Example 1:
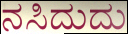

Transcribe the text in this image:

ನಸಿದುದು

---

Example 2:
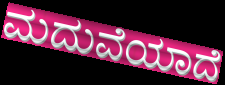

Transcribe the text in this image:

ಮದುವೆಯಾದೆ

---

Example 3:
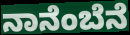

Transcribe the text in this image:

ನಾನೆಂಬೆನೆ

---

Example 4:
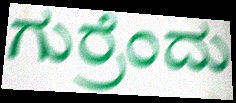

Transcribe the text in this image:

ಗುರ್ರೆಂದು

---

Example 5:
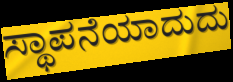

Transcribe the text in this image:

ಸ್ಥಾಪನೆಯಾದುದು